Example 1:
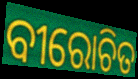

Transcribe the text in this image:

ବୀରୋଚିତ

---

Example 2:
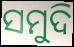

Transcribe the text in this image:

ସମୁଦି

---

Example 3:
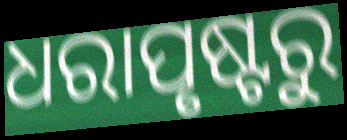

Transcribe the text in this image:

ଧରାପୃଷ୍ଟରୁ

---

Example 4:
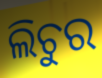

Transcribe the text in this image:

ଲିଚୁର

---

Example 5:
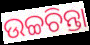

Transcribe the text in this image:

ଉଚ୍ଚଚିନ୍ତା